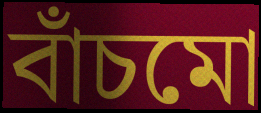
বাঁচমো